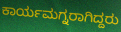
ಕಾರ್ಯಮಗ್ನರಾಗಿದ್ದರು